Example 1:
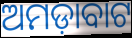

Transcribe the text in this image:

ଅମଡ଼ାବାଟ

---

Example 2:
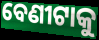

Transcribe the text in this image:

ବେଣୀଟାକୁ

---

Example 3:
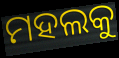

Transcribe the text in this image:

ମହଲକୁ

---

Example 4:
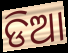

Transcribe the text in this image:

ଡିଆ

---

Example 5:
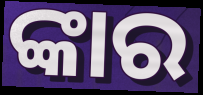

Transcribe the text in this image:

ଙ୍କାର